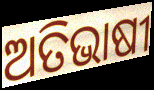
ଅତିଭାଷୀ